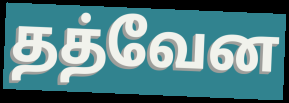
தத்வேன